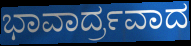
ಭಾವಾರ್ದ್ರವಾದ